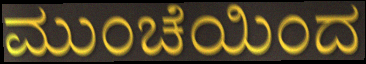
ಮುಂಚೆಯಿಂದ